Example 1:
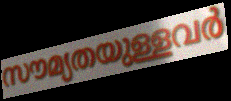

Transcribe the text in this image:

സൗമ്യതയുള്ളവർ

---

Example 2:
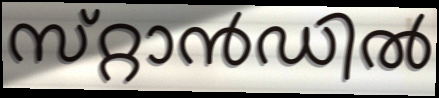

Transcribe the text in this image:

സ്‌റ്റാൻഡിൽ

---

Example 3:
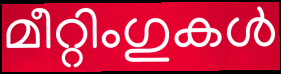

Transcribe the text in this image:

മീറ്റിംഗുകൾ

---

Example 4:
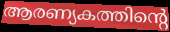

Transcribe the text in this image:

ആരണ്യകത്തിന്റെ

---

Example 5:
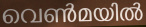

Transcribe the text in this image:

വെൺമയിൽ